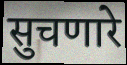
सुचणारे